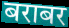
बराबर